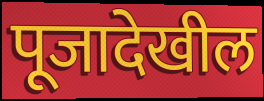
पूजादेखील